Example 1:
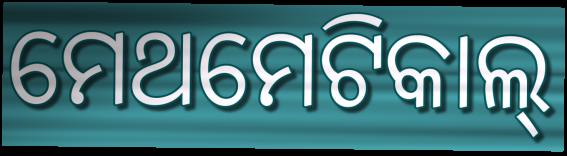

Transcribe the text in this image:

ମେଥମେଟିକାଲ୍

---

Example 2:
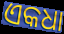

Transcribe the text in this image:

ଏକଧା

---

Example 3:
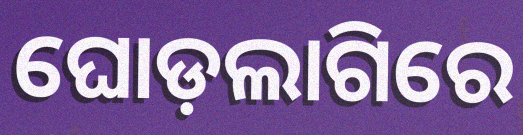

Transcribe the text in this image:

ଘୋଡ଼ଲାଗିରେ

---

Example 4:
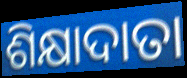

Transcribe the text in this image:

ଶିକ୍ଷାଦାତା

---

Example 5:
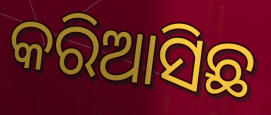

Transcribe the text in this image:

କରିଆସିଛ